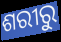
ଶରୀରୁ